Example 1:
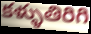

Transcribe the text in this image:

కళ్ళుతిరిగి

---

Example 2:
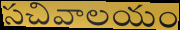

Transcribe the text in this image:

సచివాలయం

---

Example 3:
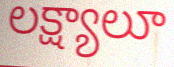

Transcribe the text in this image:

లక్ష్యాలూ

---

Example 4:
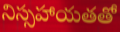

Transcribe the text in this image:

నిస్సహాయతతో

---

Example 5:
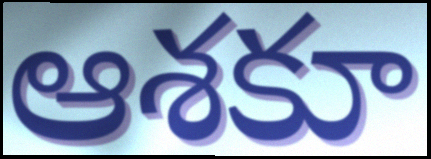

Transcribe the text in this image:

ఆశకూ